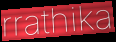
rrathika